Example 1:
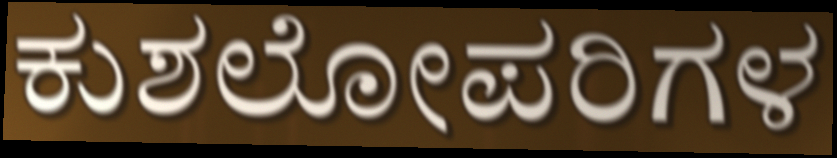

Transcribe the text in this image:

ಕುಶಲೋಪರಿಗಳ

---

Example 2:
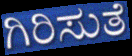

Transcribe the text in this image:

ಗಿರಿಸುತೆ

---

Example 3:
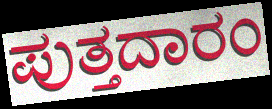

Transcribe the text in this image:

ಪುತ್ತದಾರಂ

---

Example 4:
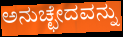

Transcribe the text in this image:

ಅನುಚ್ಛೇದವನ್ನು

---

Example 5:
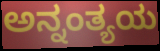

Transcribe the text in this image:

ಅನ್ನಂತ್ಯಯ